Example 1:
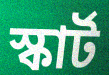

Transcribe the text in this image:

স্কাৰ্ট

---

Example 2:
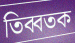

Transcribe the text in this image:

তিব্বতক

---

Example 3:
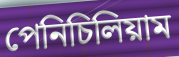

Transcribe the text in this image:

পেনিচিলিয়াম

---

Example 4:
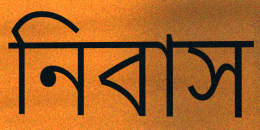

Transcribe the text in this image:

নিবাস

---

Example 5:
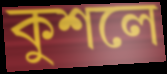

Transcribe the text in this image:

কুশলে